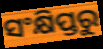
ସଂକ୍ଷିପ୍ତରୁ